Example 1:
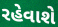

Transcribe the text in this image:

રહેવાશે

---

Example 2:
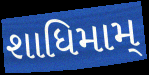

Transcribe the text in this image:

શાધિમામ્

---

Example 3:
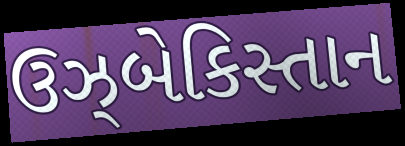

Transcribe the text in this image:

ઉઝ્બેકિસ્તાન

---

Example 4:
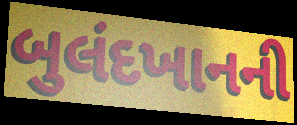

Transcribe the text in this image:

બુલંદખાનની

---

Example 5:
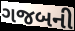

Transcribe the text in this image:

ગજબની